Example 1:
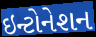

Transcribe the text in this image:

ઇન્ટોનેશન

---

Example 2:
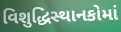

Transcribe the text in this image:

વિશુદ્ધિસ્થાનકોમાં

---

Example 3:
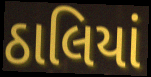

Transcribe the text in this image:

ઠાલિયાં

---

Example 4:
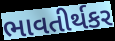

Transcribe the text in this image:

ભાવતીર્થકર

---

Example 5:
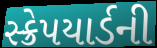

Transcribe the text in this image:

સ્ક્રેપયાર્ડની